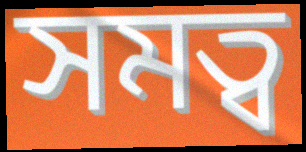
সমত্ব